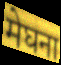
मेघना